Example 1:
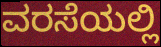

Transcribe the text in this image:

ವರಸೆಯಲ್ಲಿ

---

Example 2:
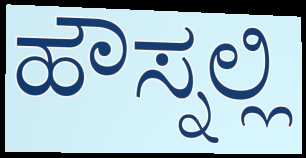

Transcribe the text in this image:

ಹೌಸ್ನಲ್ಲಿ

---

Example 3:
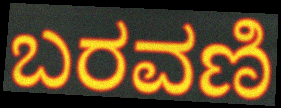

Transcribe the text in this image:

ಬರವಣಿ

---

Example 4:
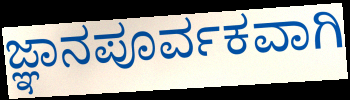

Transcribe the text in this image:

ಜ್ಞಾನಪೂರ್ವಕವಾಗಿ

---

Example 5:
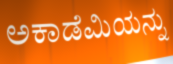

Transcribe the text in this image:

ಅಕಾಡೆಮಿಯನ್ನು